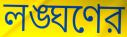
লঙ্ঘণের